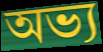
অভ্য